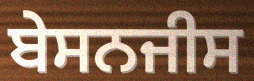
ਬੇਸਨਜੀਸ